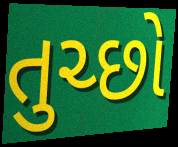
તુચ્છો